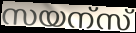
സയന്സ്